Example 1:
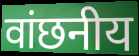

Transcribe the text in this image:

वांछनीय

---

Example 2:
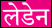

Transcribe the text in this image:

लेडेन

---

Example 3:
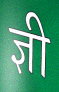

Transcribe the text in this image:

ज्ञी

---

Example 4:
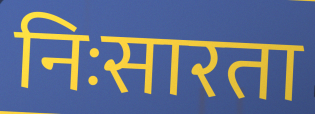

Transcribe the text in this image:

निःसारता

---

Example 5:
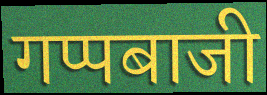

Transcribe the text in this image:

गप्पबाजी